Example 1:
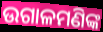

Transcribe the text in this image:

ଉଗାଳମଣିଙ୍କ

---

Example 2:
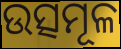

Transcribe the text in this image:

ଉତ୍ସମୂଳ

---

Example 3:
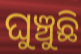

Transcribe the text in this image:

ଘୁଞ୍ଚୁଛି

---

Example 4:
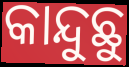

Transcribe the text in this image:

କାନ୍ଦୁଛୁ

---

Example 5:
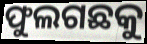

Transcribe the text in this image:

ଫୁଲଗଛକୁ